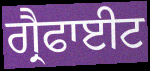
ਗ੍ਰੈਫਾਈਟ